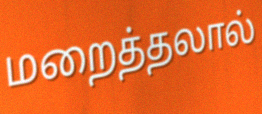
மறைத்தலால்